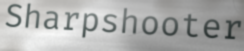
Sharpshooter